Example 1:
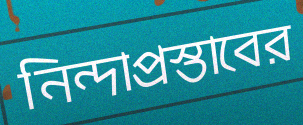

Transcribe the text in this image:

নিন্দাপ্রস্তাবের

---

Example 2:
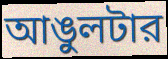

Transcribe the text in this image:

আঙুলটার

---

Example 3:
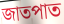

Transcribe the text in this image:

জাতপাত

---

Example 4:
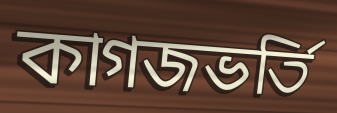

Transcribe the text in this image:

কাগজভর্তি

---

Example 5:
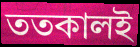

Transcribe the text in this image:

ততকালই